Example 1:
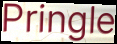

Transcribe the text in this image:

Pringle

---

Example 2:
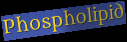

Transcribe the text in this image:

Phospholipid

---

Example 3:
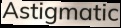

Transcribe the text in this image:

Astigmatic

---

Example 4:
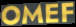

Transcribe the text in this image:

OMEF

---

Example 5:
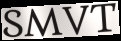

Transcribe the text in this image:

SMVT